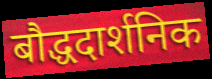
बौद्धदार्शनिक